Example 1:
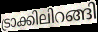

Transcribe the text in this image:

ട്രാക്കിലിറങ്ങി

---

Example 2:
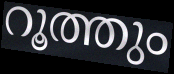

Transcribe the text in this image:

റൂത്തും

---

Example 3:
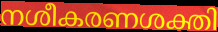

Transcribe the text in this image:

നശീകരണശക്തി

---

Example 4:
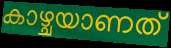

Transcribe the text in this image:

കാഴ്ചയാണത്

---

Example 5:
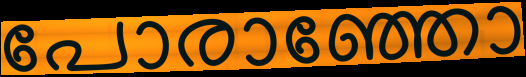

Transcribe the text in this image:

പോരാഞ്ഞോ